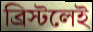
ব্রিস্টলেই